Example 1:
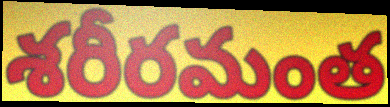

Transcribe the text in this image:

శరీరమంత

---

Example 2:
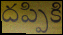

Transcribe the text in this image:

దప్పికి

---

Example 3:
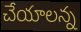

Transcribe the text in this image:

చేయాలన్న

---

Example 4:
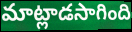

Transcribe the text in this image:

మాట్లాడసాగింది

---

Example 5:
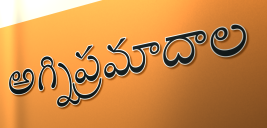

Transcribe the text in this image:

అగ్నిప్రమాదాల